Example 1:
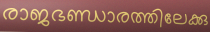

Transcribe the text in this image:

രാജഭണ്ഡാരത്തിലേക്കു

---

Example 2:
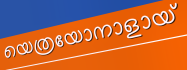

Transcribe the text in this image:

യെത്രയോനാളായ്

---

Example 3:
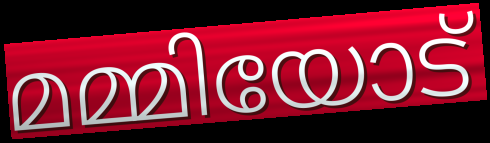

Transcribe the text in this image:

മമ്മിയോട്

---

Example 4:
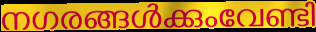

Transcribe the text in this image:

നഗരങ്ങൾക്കുംവേണ്ടി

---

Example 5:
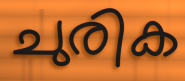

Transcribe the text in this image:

ചുരിക